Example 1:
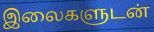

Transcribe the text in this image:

இலைகளுடன்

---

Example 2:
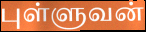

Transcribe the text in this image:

புள்ளுவன்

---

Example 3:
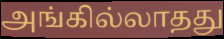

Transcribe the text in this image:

அங்கில்லாதது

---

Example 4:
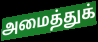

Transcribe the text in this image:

அமைத்துக்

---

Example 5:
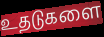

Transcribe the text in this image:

உதடுகளை